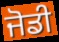
ਜੋਡੀ